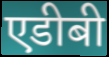
एडीबी